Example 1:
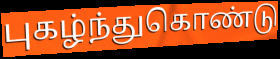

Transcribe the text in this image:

புகழ்ந்துகொண்டு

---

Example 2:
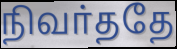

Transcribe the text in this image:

நிவர்ததே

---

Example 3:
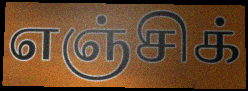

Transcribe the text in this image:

எஞ்சிக்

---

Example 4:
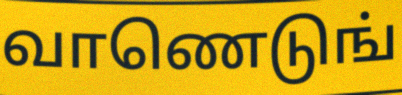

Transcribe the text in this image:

வாணெடுங்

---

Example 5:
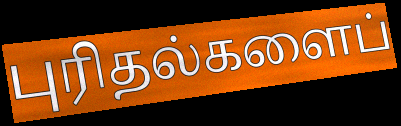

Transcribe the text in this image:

புரிதல்களைப்